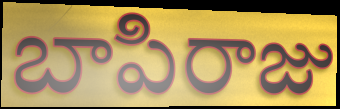
బాపిరాజు